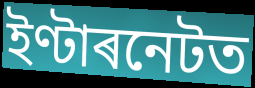
ইণ্টাৰনেটত